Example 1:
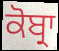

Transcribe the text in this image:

ਕੋਬ੍ਰਾ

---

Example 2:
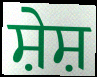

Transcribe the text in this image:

ਸ਼ੇਸ਼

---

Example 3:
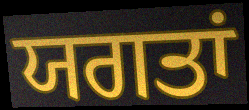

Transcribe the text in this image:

ਯਗਤਾਂ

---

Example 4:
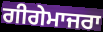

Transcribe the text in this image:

ਗੀਗੇਮਾਜਰਾ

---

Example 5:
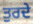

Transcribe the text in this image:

ਤੁਰਦੇ